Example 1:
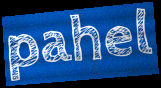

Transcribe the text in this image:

pahel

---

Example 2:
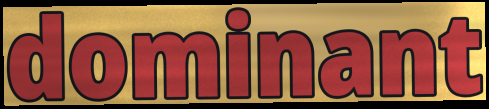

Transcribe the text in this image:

dominant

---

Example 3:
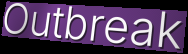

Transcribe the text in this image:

Outbreak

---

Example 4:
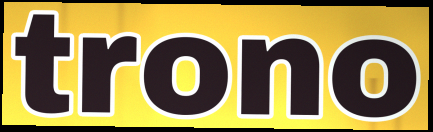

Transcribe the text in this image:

trono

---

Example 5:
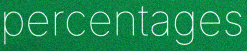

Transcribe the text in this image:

percentages